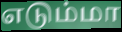
எடும்மா